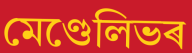
মেণ্ডেলিভৰ